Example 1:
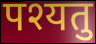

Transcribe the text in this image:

पश्यतु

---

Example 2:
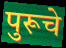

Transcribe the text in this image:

पुरूचे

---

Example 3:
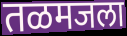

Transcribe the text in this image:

तळमजला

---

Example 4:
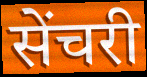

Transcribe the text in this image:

सेंचरी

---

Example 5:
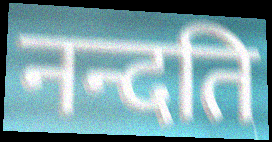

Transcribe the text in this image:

नन्दति